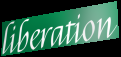
liberation